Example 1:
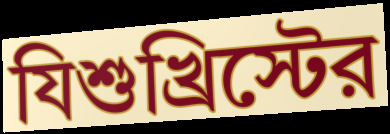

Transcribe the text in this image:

যিশুখ্রিস্টের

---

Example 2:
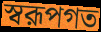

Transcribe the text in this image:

স্বরূপগত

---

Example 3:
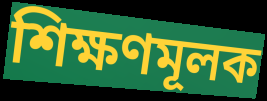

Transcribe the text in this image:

শিক্ষণমূলক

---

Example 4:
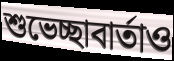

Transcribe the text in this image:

শুভেচ্ছাবার্তাও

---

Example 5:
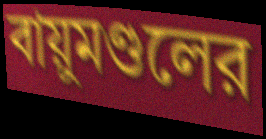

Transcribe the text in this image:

বায়ুমণ্ডলের